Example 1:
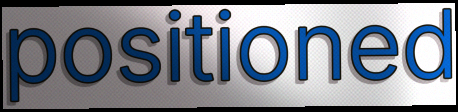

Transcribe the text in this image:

positioned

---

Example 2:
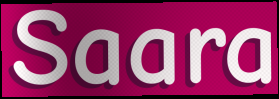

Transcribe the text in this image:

Saara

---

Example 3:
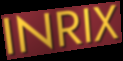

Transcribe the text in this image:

INRIX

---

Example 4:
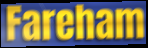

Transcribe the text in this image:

Fareham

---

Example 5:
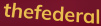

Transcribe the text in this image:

thefederal